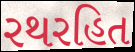
રથરહિત